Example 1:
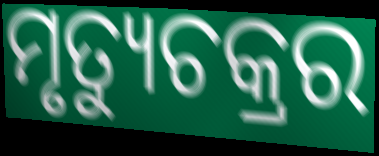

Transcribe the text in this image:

ମୃତ୍ୟୁଚକ୍ରର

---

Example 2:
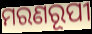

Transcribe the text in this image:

ମରଣରୂପୀ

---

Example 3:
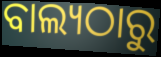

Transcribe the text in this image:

ବାଲ୍ୟଠାରୁ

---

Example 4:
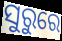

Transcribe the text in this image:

ସୁରୁରେ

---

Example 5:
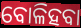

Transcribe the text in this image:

ବୋଳିହବା